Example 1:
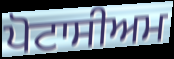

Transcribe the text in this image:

ਪੋਟਾਸੀਅਮ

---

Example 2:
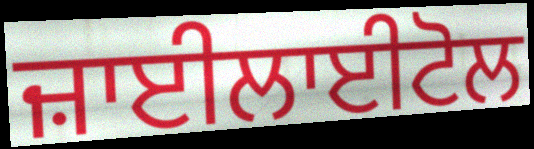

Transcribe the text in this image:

ਜ਼ਾਈਲਾਈਟੋਲ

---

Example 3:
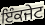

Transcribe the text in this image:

ਇੰਕਜੇਟ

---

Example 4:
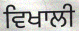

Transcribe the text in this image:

ਵਿਖਾਲੀ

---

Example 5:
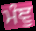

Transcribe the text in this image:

ਮੰਞੁ